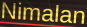
Nimalan